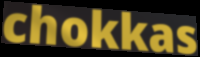
chokkas